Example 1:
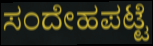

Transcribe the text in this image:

ಸಂದೇಹಪಟ್ಟೆ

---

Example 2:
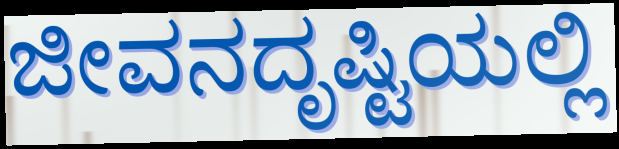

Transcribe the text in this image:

ಜೀವನದೃಷ್ಟಿಯಲ್ಲಿ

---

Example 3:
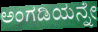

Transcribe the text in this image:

ಅಂಗಡಿಯನ್ನೇ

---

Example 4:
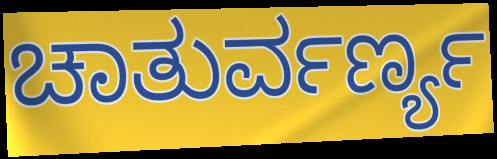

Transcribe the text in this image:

ಚಾತುರ್ವರ್ಣ್ಯ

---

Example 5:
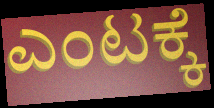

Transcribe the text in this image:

ಎಂಟಕ್ಕೆ